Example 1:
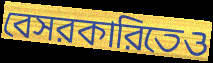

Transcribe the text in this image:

বেসরকারিতেও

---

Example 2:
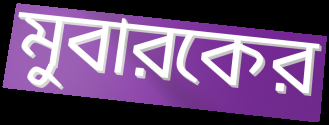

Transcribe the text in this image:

মুবারকের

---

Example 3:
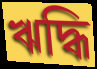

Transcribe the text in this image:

ঋদ্ধি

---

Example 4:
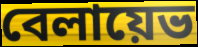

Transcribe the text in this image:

বেলায়েভ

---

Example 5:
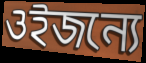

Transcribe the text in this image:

ওইজন্যে